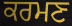
ਕਰਮਣ